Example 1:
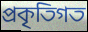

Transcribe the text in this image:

প্রকৃতিগত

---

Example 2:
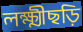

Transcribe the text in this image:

লক্ষ্মীছড়ি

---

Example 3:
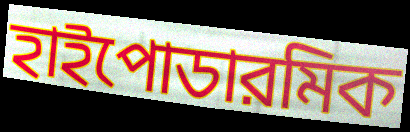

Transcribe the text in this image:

হাইপোডারমিক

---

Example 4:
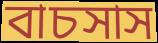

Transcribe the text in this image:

বাচসাস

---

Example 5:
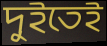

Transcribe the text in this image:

দুইতেই